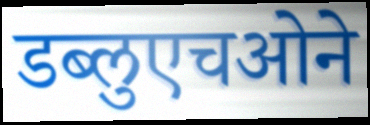
डब्लुएचओने